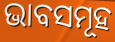
ଭାବସମୂହ